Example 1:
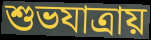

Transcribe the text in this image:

শুভযাত্রায়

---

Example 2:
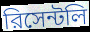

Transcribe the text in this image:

রিসেন্টলি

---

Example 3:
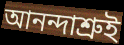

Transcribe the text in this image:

আনন্দাশ্রুই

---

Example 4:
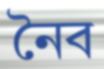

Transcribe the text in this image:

নৈব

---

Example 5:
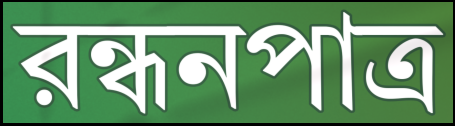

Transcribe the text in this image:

রন্ধনপাত্র